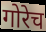
गोरेच